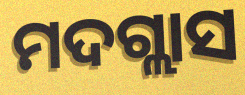
ମଦଗ୍ଲାସ